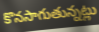
కొనసాగుతున్నట్లు